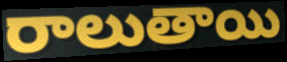
రాలుతాయి